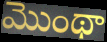
మొంథా